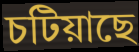
চটিয়াছে